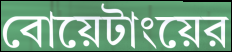
বোয়েটাংয়ের